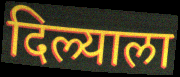
दिल्याला